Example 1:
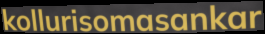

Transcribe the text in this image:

kollurisomasankar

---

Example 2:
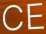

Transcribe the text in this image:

CE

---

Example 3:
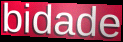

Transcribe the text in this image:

bidade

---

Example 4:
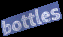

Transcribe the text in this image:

bottles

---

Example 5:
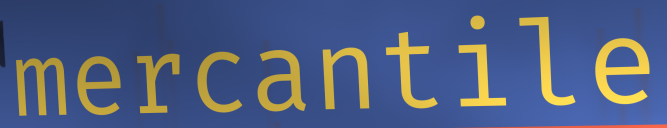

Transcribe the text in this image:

mercantile